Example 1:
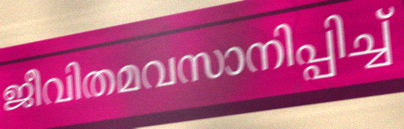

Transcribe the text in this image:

ജീവിതമവസാനിപ്പിച്ച്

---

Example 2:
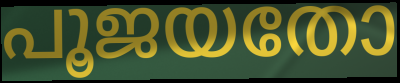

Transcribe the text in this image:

പൂജയതോ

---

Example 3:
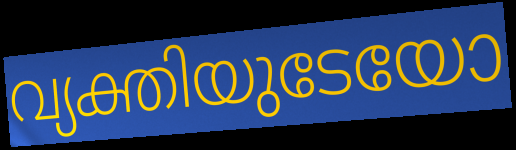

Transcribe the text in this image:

വ്യക്തിയുടേയോ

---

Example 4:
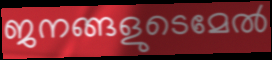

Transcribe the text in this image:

ജനങ്ങളുടെമേൽ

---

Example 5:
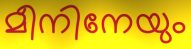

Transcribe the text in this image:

മീനിനേയും